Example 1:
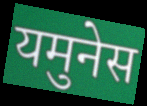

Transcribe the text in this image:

यमुनेस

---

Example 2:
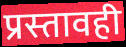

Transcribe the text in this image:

प्रस्तावही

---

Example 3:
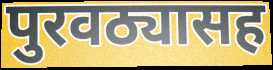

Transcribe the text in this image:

पुरवठ्यासह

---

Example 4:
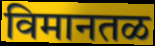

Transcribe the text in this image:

विमानतळ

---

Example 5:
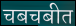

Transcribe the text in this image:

चबचबीत